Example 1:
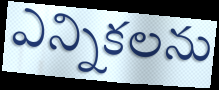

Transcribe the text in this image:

ఎన్నికలను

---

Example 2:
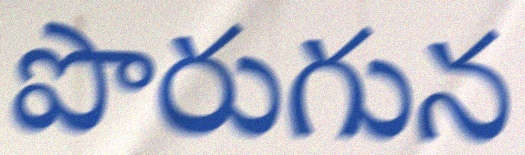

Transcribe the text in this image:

పొరుగున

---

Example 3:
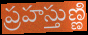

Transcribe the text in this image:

ప్రహస్తుణ్ణి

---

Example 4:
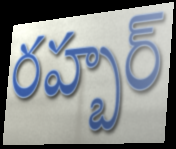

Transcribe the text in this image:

రహ్బర్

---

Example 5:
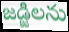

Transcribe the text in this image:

జడ్జిలను